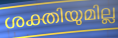
ശക്തിയുമില്ല